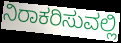
ನಿರಾಕರಿಸುವಲ್ಲಿ